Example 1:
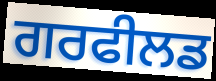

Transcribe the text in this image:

ਗਰਫੀਲਡ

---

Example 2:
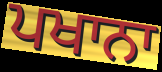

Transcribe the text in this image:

ਪਖਾਨਾ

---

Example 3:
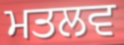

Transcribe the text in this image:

ਮਤਲਵ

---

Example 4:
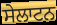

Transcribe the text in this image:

ਸੇਲਾਟਨ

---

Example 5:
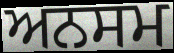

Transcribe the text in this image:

ਅਨਸਮ